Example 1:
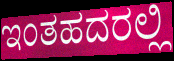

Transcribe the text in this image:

ಇಂತಹದರಲ್ಲಿ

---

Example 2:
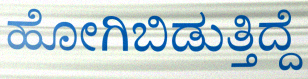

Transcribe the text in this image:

ಹೋಗಿಬಿಡುತ್ತಿದ್ದೆ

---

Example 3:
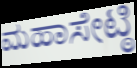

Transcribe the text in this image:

ಮಹಾಸೇಟ್ಠಿ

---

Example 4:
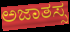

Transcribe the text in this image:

ಅಜಾತಸ್ಸ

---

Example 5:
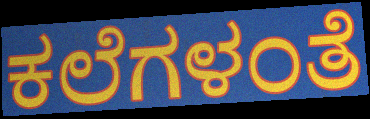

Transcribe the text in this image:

ಕಲೆಗಳಂತೆ